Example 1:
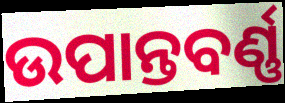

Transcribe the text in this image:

ଉପାନ୍ତବର୍ଣ୍ଣ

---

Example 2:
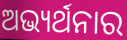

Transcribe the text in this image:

ଅଭ୍ୟର୍ଥନାର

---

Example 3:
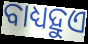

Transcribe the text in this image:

ବାଧ୍ୟହୁଏ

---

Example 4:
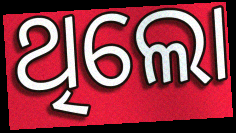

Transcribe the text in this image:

ଥିଲୋ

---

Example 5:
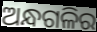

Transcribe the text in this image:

ଅନ୍ଧଗଳିର